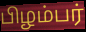
பிழம்பர்